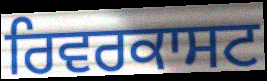
ਰਿਵਰਕਾਸਟ